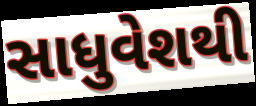
સાધુવેશથી